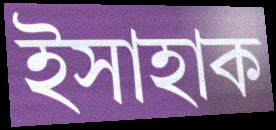
ইসাহাক